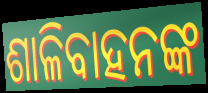
ଶାଳିବାହନଙ୍କ